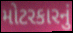
મોટરકારનું